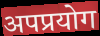
अपप्रयोग